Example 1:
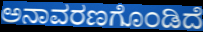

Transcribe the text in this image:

ಅನಾವರಣಗೊಂಡಿದೆ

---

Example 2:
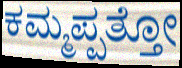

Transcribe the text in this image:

ಕಮ್ಮಪ್ಪತ್ತೋ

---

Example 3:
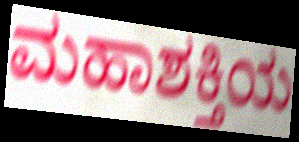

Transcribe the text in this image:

ಮಹಾಶಕ್ತಿಯ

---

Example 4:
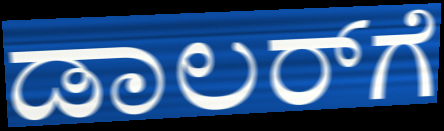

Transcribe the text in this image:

ಡಾಲರ್‌ಗೆ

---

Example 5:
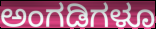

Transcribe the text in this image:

ಅಂಗಡಿಗಳೂ